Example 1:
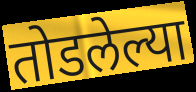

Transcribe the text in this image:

तोडलेल्या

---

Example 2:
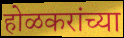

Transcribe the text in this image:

होळकरांच्या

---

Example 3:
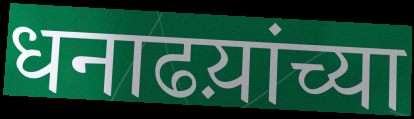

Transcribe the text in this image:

धनाढय़ांच्या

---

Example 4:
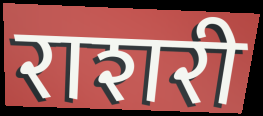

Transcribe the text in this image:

राशरी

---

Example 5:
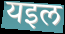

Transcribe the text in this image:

यइल